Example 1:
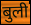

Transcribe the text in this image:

बुली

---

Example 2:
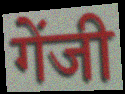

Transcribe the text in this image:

गेंजी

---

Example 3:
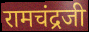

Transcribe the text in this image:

रामचंद्रजी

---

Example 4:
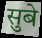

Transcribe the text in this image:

सुबे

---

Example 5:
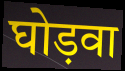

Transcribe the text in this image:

घोड़वा